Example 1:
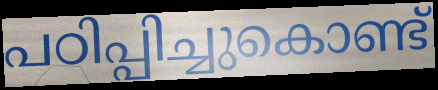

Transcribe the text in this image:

പഠിപ്പിച്ചുകൊണ്ട്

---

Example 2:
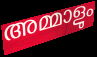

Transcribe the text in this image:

അമ്മാളും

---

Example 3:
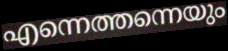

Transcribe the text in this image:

എന്നെത്തന്നെയും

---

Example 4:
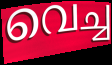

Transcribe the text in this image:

വെച്ച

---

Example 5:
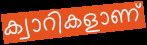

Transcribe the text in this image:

ക്വാറികളാണ്